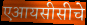
एआयसीसीचे